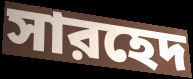
সারহেদ